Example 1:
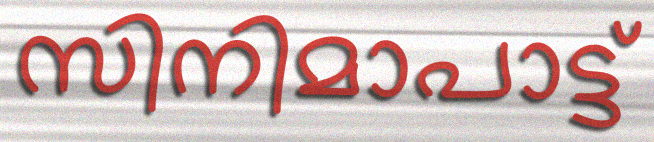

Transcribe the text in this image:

സിനിമാപാട്ട്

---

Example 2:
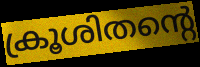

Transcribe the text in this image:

ക്രൂശിതന്റെ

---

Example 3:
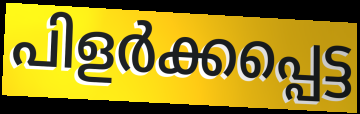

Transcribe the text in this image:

പിളർക്കപ്പെട്ട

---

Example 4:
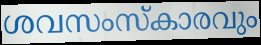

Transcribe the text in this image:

ശവസംസ്കാരവും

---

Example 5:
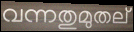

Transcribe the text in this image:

വന്നതുമുതല്